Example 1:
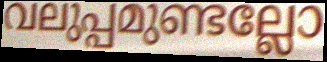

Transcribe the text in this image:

വലുപ്പമുണ്ടല്ലോ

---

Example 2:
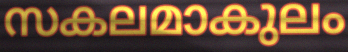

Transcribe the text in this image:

സകലമാകുലം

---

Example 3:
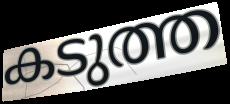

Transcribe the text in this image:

കടുത്ത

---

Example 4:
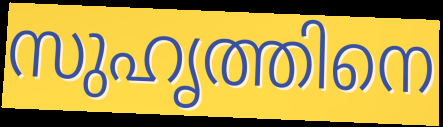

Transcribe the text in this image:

സുഹൃത്തിനെ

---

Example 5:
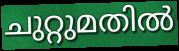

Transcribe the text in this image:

ചുറ്റുമതിൽ